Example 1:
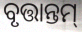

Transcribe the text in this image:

ବୃତ୍ତାନ୍ତମ୍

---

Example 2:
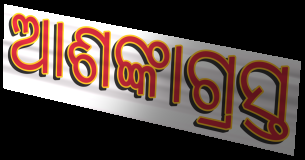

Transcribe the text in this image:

ଆଶଙ୍କାଗ୍ରସ୍ତ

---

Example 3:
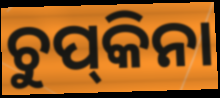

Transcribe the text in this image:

ଚୁପ୍‌କିନା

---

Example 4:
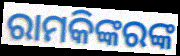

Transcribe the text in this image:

ରାମକିଙ୍କରଙ୍କ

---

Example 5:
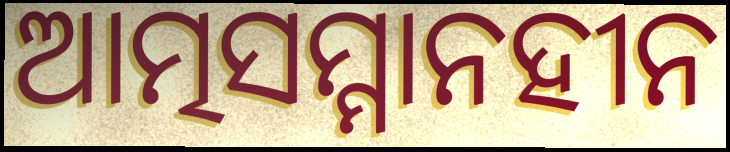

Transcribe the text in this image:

ଆତ୍ମସମ୍ମାନହୀନ